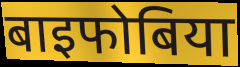
बाइफोबिया